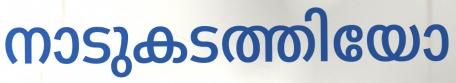
നാടുകടത്തിയോ